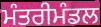
ਮੰਤਰੀਮੰਡਲ